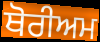
ਥੋਰੀਅਮ